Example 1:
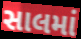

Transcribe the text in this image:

સાલમાં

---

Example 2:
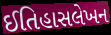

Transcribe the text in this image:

ઈતિહાસલેખન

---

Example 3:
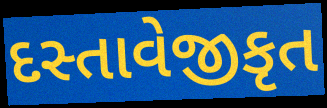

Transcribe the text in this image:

દસ્તાવેજીકૃત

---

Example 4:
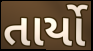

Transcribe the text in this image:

તાર્યો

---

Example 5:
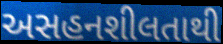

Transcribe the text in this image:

અસહનશીલતાથી